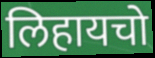
लिहायचो